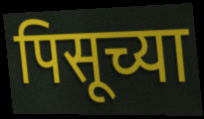
पिसूच्या